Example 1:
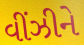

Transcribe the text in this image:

વીંઝીને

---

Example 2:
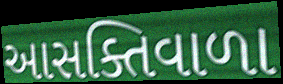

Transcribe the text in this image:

આસક્તિવાળા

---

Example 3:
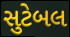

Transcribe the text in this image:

સુટેબલ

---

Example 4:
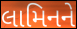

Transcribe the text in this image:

લામિનને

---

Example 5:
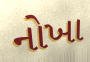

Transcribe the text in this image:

નોખા